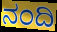
ನಂದಿ